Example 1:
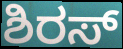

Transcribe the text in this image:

ಶಿರಸ್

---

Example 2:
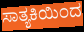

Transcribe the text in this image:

ಸಾತ್ಯಕಿಯಿಂದ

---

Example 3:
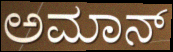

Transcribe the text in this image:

ಅಮಾನ್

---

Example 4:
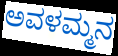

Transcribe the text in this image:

ಅವಳಮ್ಮನ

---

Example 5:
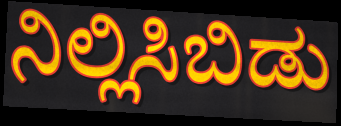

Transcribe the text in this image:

ನಿಲ್ಲಿಸಿಬಿಡು